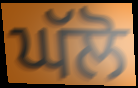
ਘੱਲੋ